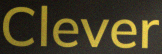
Clever